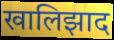
खालिझाद